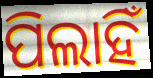
ପିଲାହିଁ